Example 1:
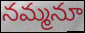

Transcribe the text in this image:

నమ్మనూ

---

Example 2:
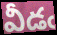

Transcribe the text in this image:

వీడఁ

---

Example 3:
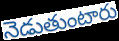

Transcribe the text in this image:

నెడుతుంటారు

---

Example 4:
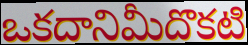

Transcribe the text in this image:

ఒకదానిమీదొకటి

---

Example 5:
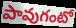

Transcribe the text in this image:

పావుగంటో